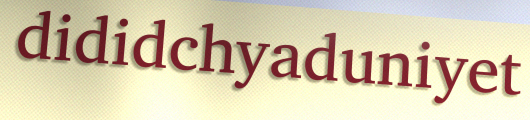
dididchyaduniyet